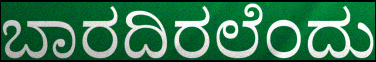
ಬಾರದಿರಲೆಂದು